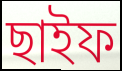
ছাইফ